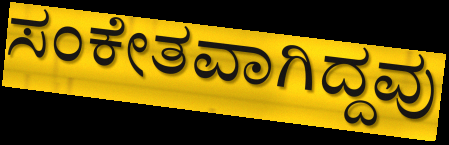
ಸಂಕೇತವಾಗಿದ್ದವು